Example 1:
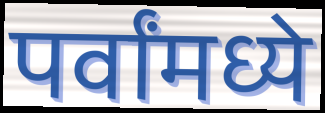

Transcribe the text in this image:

पर्वांमध्ये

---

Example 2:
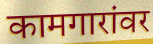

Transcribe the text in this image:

कामगारांवर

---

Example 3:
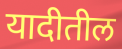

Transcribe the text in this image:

यादीतील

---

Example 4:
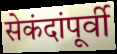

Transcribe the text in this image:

सेकंदांपूर्वी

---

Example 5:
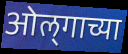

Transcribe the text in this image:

ओल्गाच्या